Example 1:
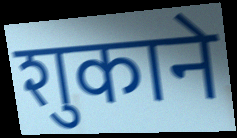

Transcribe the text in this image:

शुकाने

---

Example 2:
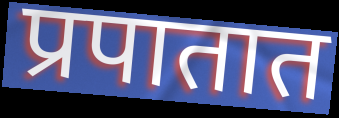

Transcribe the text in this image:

प्रपातात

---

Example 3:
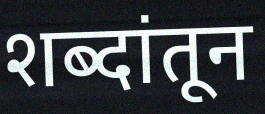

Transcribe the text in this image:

शब्दांतून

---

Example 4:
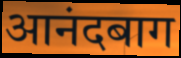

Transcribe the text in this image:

आनंदबाग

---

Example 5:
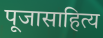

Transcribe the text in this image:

पूजासाहित्य